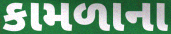
કામળાના